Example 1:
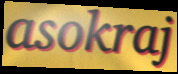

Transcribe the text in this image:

asokraj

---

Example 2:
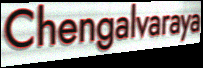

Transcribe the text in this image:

Chengalvaraya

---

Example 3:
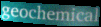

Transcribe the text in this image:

geochemical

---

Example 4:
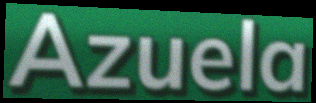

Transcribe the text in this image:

Azuela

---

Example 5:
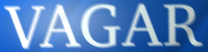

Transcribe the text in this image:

VAGAR